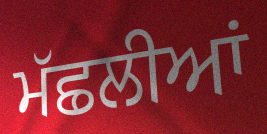
ਮੱਛਲੀਆਂ